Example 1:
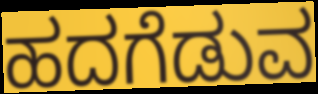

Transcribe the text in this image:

ಹದಗೆಡುವ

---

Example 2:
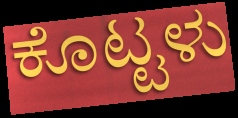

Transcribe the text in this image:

ಕೊಟ್ಟಳು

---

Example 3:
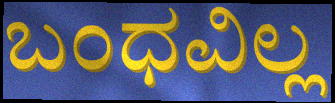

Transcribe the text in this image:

ಬಂಧವಿಲ್ಲ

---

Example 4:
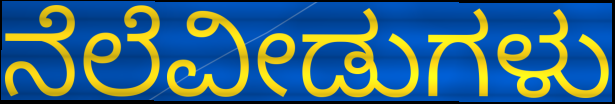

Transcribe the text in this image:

ನೆಲೆವೀಡುಗಳು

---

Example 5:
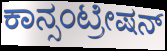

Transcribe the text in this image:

ಕಾನ್ಸಂಟ್ರೇಷನ್